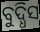
ବୁଦ୍ଧିସ